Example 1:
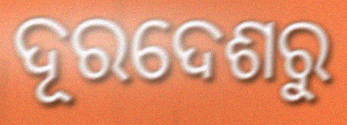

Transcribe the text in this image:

ଦୂରଦେଶରୁ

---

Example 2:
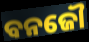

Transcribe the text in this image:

ବନଜୌ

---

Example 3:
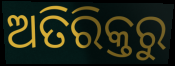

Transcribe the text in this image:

ଅତିରିକ୍ତରୁ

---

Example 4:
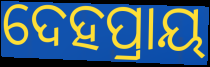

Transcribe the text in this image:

ଦେହପ୍ରାୟ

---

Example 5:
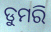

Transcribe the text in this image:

ଡୁମରି